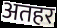
अतहर